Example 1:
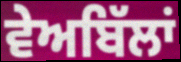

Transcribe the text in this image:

ਵੇਅਬਿੱਲਾਂ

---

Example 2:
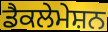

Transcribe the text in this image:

ਡੈਕਲੇਮੇਸ਼ਨ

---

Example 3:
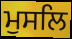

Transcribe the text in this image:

ਮੁਸਲਿ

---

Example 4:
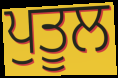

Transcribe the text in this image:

ਪੁਤੂਲ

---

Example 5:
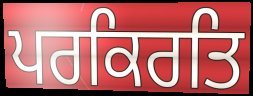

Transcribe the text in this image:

ਪਰਕਿਰਤਿ